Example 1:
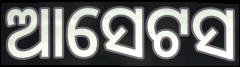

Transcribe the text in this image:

ଆସେଟସ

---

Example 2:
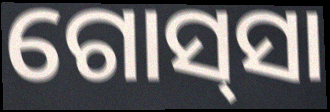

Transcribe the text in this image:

ଗୋସ୍‌ସା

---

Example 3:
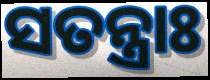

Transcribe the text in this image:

ସତନ୍ତ୍ରାଃ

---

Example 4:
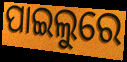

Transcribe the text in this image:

ପାଇଲୁରେ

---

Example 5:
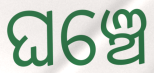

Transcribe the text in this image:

ଘଞ୍ଚେ